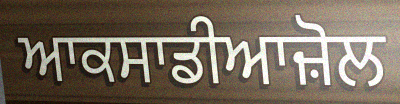
ਆਕਸਾਡੀਆਜ਼ੋਲ